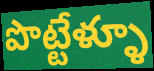
పొట్టేళ్ళూ